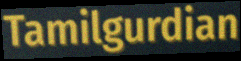
Tamilgurdian